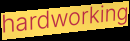
hardworking